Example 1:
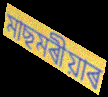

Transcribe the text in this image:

মাছমৰীয়াৰ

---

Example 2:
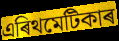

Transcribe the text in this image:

এৰিথমেটিকাৰ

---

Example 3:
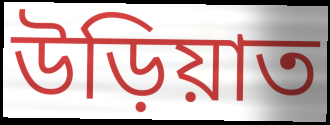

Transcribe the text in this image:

উড়িয়াত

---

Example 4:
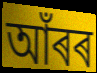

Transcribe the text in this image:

আঁৰৰ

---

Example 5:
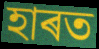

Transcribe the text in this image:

হাৰত